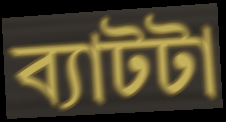
ব্যাটটা